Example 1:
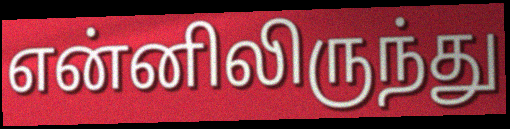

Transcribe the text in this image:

என்னிலிருந்து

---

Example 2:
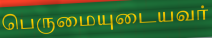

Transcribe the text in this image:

பெருமையுடையவர்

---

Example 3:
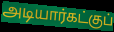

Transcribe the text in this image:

அடியார்கட்குப்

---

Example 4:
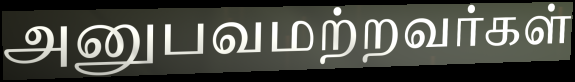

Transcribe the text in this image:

அனுபவமற்றவர்கள்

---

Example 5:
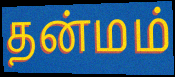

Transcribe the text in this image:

தன்மம்